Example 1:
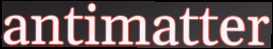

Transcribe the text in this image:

antimatter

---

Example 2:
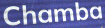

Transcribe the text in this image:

Chamba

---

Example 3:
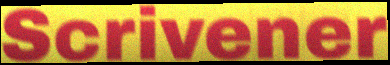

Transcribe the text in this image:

Scrivener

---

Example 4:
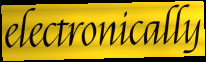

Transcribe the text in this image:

electronically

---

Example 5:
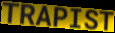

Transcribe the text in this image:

TRAPIST